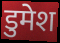
डुमेश